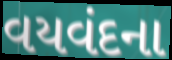
વયવંદના